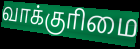
வாக்குரிமை